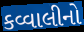
કવ્વાલીનો